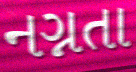
નગ્નતા